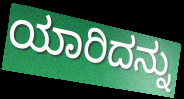
ಯಾರಿದನ್ನು